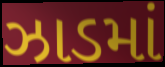
ઝાડમાં